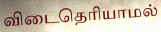
விடைதெரியாமல்